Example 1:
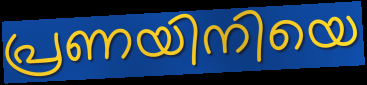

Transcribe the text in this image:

പ്രണയിനിയെ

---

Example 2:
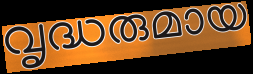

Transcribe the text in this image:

വൃദ്ധരുമായ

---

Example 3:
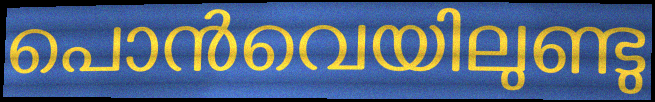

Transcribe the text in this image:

പൊൻവെയിലുണ്ടു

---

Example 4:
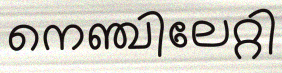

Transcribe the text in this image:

നെഞ്ചിലേറ്റി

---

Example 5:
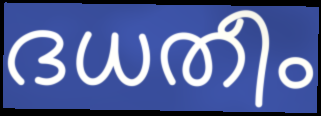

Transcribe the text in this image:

ദധതീം